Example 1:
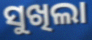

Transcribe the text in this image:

ସୁଖିଲା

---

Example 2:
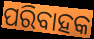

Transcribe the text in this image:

ପରିବାହକ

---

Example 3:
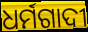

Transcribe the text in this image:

ଧର୍ମଗାଦୀ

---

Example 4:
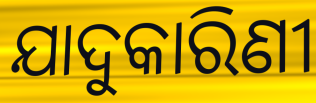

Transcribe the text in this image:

ଯାଦୁକାରିଣୀ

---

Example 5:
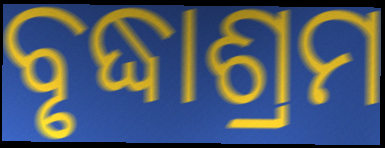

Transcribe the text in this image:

ବୃଦ୍ଧାଶ୍ରମ